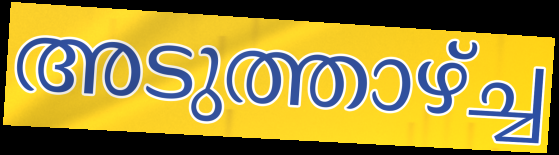
അടുത്താഴ്ച്ച